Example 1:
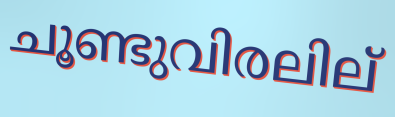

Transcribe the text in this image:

ചൂണ്ടുവിരലില്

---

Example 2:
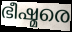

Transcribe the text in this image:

ഭീഷ്മരെ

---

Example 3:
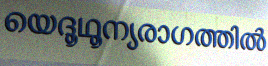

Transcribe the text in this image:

യെദൂഥൂന്യരാഗത്തിൽ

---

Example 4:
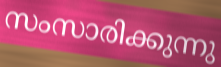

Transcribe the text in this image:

സംസാരിക്കുന്നു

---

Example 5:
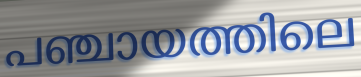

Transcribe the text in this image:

പഞ്ചായത്തിലെ